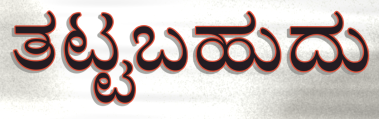
ತಟ್ಟಬಹುದು